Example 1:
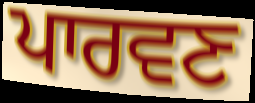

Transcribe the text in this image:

ਪਾਰਵਣ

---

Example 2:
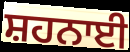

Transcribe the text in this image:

ਸ਼ਹਨਾਈ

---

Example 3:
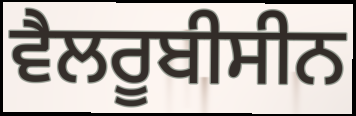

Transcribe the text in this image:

ਵੈਲਰੂਬੀਸੀਨ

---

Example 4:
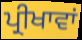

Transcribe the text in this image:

ਪ੍ਰੀਖਾਵਾਂ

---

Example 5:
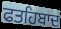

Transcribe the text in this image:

ਫਤਹਿਬਾਦ